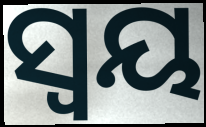
ସ୍ବୟ